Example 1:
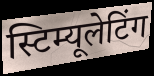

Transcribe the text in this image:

स्टिम्यूलेटिंग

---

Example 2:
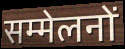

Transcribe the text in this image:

सम्मेलनों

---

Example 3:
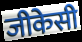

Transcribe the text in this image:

जीकेसी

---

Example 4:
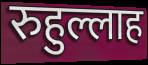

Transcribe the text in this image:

रुहुल्लाह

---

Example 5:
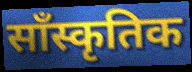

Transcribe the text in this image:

साँस्कृतिक